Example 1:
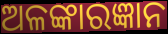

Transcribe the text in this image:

ଅଳଙ୍କାରଜ୍ଞାନ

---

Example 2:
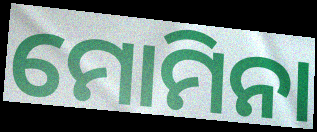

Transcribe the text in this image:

ମୋମିନା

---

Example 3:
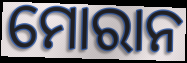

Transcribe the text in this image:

ମୋରାନ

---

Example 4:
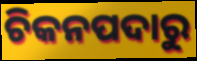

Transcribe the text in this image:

ଚିକନପଦାରୁ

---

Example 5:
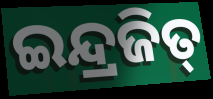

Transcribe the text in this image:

ଇନ୍ଦ୍ରଜିତ୍